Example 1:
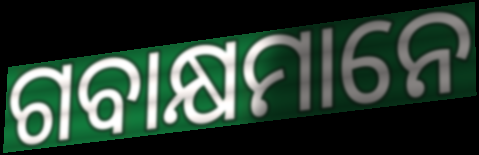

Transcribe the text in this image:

ଗବାକ୍ଷମାନେ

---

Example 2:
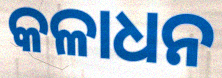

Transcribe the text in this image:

କଳାଧନ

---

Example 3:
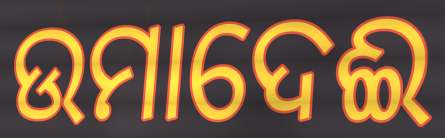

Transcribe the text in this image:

ଉମାଦେଈ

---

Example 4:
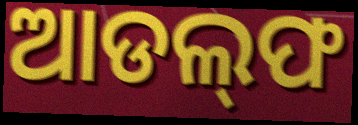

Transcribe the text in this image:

ଆଡଲ୍‌ଫ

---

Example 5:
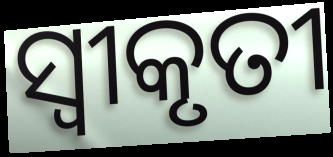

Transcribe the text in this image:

ସ୍ୱୀକୃତୀ